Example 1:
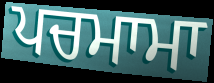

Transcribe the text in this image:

ਪਚਮਾਮਾ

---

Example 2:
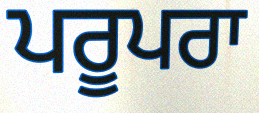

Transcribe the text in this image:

ਪਰੂਪਰਾ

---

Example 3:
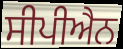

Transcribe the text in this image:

ਸੀਪੀਐਨ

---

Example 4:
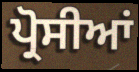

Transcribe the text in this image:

ਪ੍ਰੋਸੀਆਂ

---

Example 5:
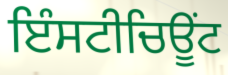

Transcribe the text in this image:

ਇੰਸਟੀਚਿਊਂਟ